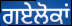
ਗਏਲੋਕਾਂ